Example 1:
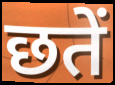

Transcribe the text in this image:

छतें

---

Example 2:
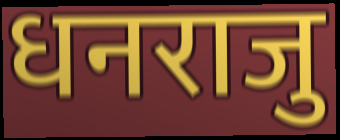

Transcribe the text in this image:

धनराजु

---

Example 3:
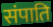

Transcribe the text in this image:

संपाति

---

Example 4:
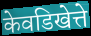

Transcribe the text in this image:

केवडिखेत्ते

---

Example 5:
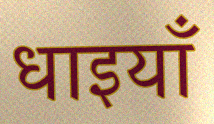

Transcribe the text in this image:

धाइयाँ